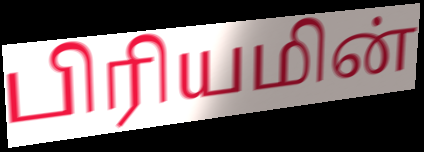
பிரியமின்